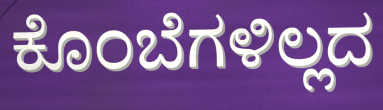
ಕೊಂಬೆಗಳಿಲ್ಲದ